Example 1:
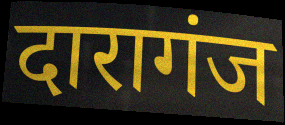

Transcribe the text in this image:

दारागंज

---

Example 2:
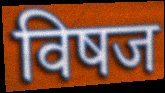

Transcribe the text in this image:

विषज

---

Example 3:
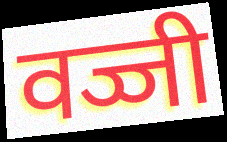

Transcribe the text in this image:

वज्जी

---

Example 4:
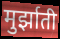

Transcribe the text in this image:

मुर्झाती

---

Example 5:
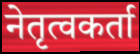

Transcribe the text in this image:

नेतृत्वकर्ता